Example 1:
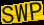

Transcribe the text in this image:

SWP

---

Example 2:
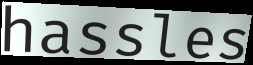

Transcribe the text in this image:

hassles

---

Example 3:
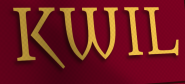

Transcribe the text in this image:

KWIL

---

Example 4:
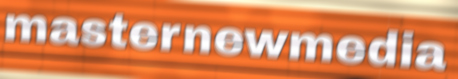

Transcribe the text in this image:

masternewmedia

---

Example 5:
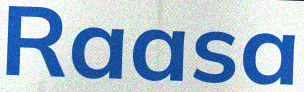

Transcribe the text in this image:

Raasa